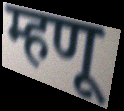
म्हणू